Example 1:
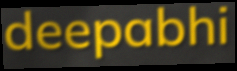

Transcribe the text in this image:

deepabhi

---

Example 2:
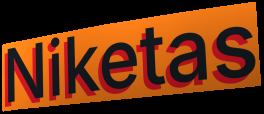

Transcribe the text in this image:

Niketas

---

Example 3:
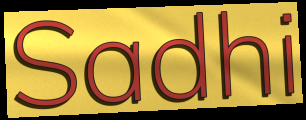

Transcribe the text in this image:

Sadhi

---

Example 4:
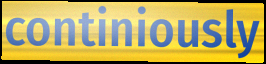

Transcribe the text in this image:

continiously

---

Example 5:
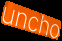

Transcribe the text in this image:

uncho